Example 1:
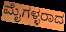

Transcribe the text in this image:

ಮೈಗಳ್ಳರಾದ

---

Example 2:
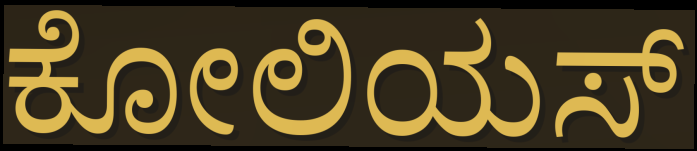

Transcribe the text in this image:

ಕೋಲಿಯಸ್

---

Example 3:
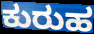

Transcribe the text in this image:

ಕುರುಹ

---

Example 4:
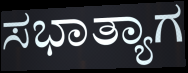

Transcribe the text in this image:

ಸಭಾತ್ಯಾಗ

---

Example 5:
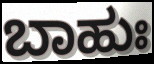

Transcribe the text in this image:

ಬಾಹುಃ